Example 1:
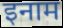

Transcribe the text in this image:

इनाम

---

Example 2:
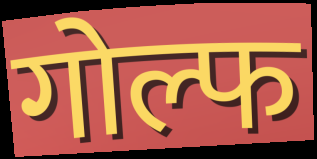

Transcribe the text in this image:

गोल्फ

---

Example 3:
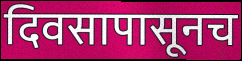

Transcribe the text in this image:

दिवसापासूनच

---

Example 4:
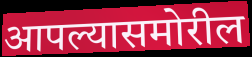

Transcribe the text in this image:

आपल्यासमोरील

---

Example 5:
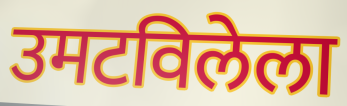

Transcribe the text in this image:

उमटविलेला